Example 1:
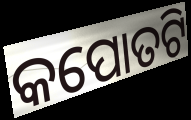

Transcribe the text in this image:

କପୋତଟି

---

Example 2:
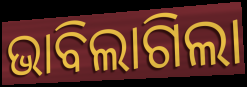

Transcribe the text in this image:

ଭାବିଲାଗିଲା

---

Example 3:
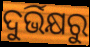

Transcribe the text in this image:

ଦୁର୍ଭିକ୍ଷରୁ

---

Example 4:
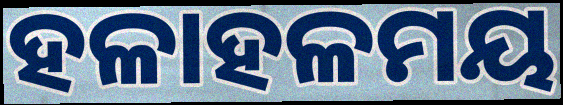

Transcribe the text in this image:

ହଳାହଳମୟ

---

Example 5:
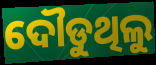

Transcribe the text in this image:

ଦୌଡୁଥିଲୁ